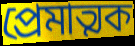
প্রেমাত্মক